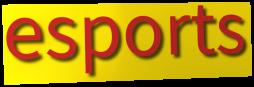
esports